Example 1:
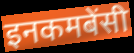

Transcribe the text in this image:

इनकमबेंसी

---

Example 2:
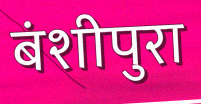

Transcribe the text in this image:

बंशीपुरा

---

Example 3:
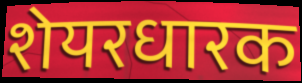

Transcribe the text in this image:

शेयरधारक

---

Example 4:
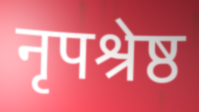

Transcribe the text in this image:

नृपश्रेष्ठ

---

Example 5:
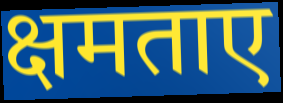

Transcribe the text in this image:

क्षमताए